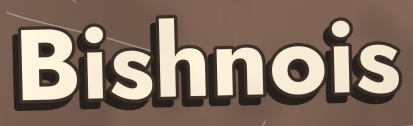
Bishnois